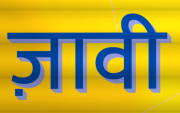
ज़ावी